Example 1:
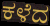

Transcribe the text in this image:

ಕಳೆದ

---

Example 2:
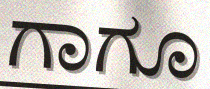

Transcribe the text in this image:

ಗಾಗೂ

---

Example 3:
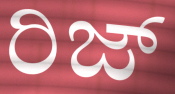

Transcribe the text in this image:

ರಿಜ್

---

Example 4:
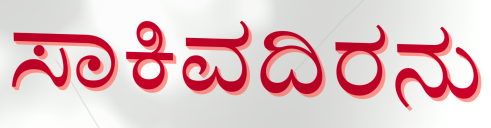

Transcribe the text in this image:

ಸಾಕಿವದಿರನು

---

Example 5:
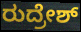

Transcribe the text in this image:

ರುದ್ರೇಶ್